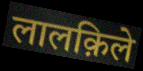
लालक़िले